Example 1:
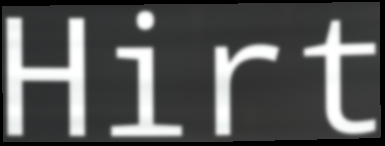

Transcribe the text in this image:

Hirt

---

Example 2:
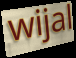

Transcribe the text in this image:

wijal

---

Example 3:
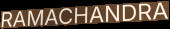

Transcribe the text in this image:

RAMACHANDRA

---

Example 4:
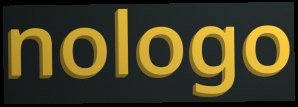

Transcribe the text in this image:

nologo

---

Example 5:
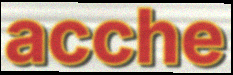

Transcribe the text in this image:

acche